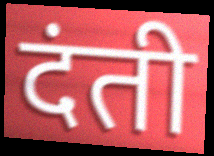
दंती